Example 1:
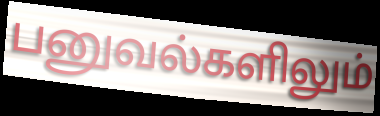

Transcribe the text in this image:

பனுவல்களிலும்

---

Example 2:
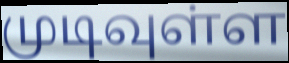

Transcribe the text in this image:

முடிவுள்ள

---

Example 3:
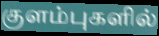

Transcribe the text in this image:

குளம்புகளில்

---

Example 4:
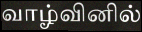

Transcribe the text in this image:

வாழ்வினில்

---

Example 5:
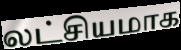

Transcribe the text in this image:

லட்சியமாக